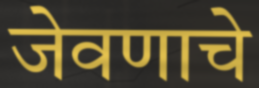
जेवणाचे